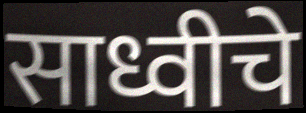
साध्वीचे